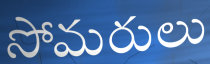
సోమరులు